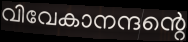
വിവേകാനന്ദന്റെ